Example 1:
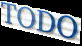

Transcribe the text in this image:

TODO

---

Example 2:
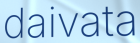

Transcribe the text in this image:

daivata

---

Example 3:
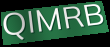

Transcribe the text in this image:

QIMRB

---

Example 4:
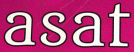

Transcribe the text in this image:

asat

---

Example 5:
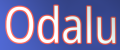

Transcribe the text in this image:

Odalu